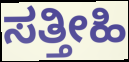
ಸತ್ತೀಹಿ